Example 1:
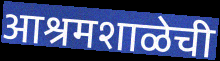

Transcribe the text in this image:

आश्रमशाळेची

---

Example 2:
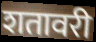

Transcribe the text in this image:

शतावरी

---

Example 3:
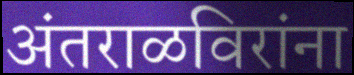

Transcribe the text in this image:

अंतराळविरांना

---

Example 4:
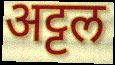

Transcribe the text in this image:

अट्टल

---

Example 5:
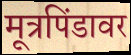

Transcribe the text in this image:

मूत्रपिंडावर